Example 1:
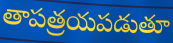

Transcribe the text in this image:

తాపత్రయపడుతూ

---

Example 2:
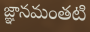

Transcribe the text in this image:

జ్ఞానమంతటి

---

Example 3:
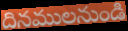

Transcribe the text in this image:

దినములనుండి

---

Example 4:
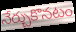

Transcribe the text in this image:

నేర్చుకొనటం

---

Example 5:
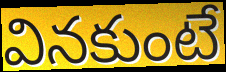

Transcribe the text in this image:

వినకుంటే